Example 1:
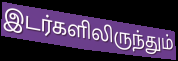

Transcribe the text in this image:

இடர்களிலிருந்தும்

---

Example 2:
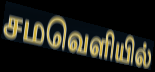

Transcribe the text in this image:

சமவெளியில்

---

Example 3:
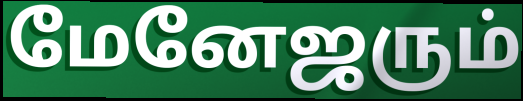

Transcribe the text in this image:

மேனேஜரும்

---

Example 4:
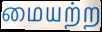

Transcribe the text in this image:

மையற்ற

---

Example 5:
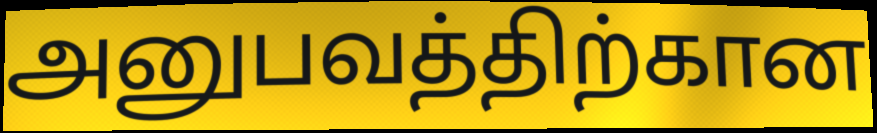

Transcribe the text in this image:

அனுபவத்திற்கான